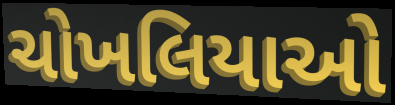
ચોખલિયાઓ